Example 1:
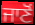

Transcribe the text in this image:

ਜਾਣੋਂ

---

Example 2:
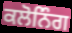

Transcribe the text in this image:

ਕਲੋਨਿੰਗ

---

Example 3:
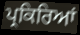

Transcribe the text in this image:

ਪ੍ਰਕਿਰਿਆਂ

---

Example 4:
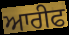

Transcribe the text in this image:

ਆਰੀਫ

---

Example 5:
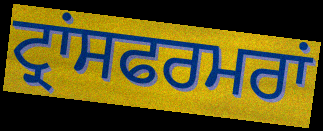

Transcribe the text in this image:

ਟ੍ਰਾਂਸਫਰਮਰਾਂ